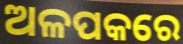
ଅଳପକରେ